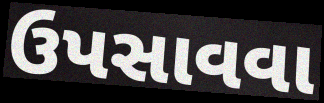
ઉપસાવવા